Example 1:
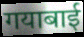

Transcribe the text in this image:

गयाबाई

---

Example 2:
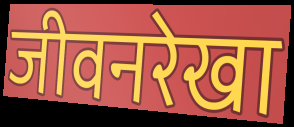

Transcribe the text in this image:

जीवनरेखा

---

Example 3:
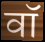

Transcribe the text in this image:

वॉ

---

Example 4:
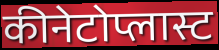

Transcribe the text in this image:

कीनेटोप्लास्ट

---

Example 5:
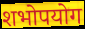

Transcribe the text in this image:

शभोपयोग